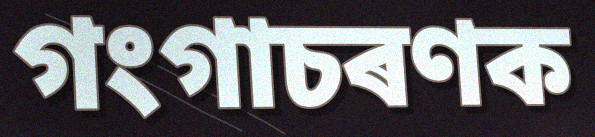
গংগাচৰণক